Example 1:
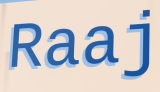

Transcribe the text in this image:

Raaj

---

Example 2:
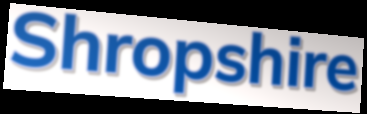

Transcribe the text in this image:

Shropshire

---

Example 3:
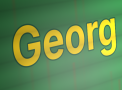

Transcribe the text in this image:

Georg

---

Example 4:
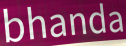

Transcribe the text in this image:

bhanda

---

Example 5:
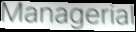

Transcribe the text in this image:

Managerial